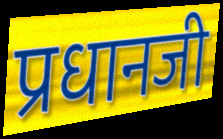
प्रधानजी